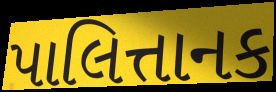
પાલિત્તાનક